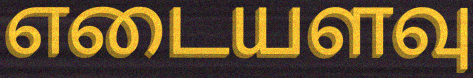
எடையளவு